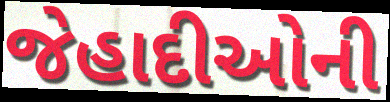
જેહાદીઓની